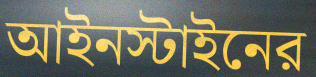
আইনস্টাইনের